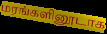
மரங்களினூடாக